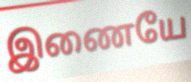
இணையே